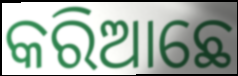
କରିଆଛେ